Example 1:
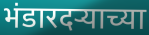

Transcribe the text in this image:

भंडारदर्‍याच्या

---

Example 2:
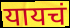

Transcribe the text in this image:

यायचं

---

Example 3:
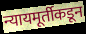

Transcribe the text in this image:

न्यायमूर्तीकडून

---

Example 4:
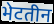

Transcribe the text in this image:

भेटतीन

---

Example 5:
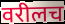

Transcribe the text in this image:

वरीलच